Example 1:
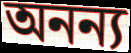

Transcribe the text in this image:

অনন্য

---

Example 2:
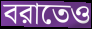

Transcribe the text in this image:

বরাতেও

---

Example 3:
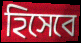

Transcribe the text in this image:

হিসেবে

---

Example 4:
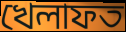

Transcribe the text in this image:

খেলাফত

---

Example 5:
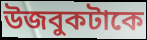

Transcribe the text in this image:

উজবুকটাকে